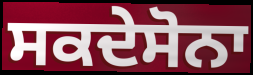
ਸਕਦੇਸੋਨਾ